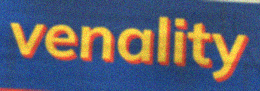
venality